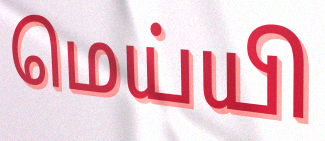
மெய்யி